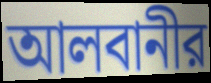
আলবানীর